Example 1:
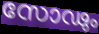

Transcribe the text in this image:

സോഢും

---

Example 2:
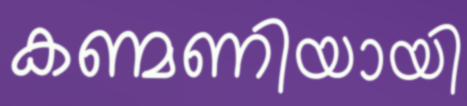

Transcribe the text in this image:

കണ്മണിയായി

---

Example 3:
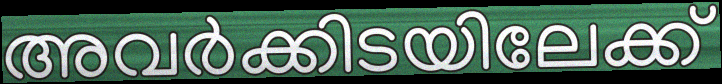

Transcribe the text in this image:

അവർക്കിടയിലേക്ക്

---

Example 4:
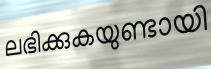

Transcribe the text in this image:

ലഭിക്കുകയുണ്ടായി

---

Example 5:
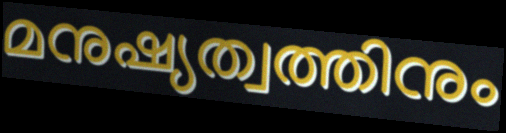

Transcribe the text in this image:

മനുഷ്യത്വത്തിനും